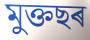
মুক্তছৰ